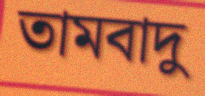
তামবাদু